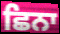
ਛਿਨਾ